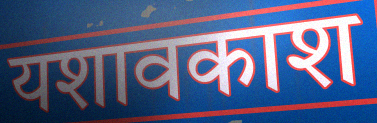
यशावकाश